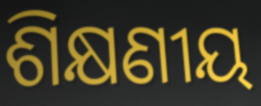
ଶିକ୍ଷଣୀୟ